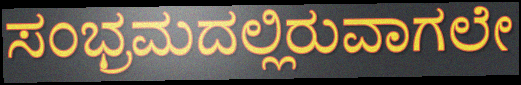
ಸಂಭ್ರಮದಲ್ಲಿರುವಾಗಲೇ